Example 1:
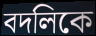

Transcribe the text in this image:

বদলিকে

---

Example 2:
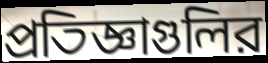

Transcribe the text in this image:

প্রতিজ্ঞাগুলির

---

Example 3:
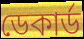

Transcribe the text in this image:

ডেকার্ড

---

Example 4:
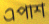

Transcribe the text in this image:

এপাশ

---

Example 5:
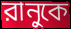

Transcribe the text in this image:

রানুকে